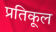
प्रतिकूल